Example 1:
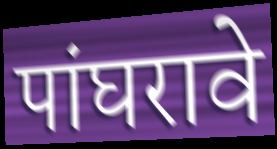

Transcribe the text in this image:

पांघरावे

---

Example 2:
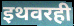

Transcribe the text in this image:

इथवरही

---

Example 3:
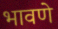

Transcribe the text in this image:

भावणे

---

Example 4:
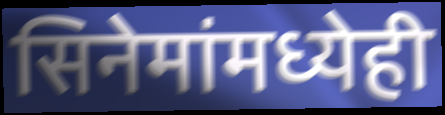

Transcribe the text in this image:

सिनेमांमध्येही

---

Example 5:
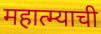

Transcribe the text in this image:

महात्म्याची